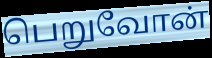
பெறுவோன்